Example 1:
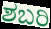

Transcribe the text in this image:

ಶಬರಿ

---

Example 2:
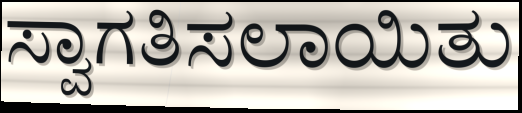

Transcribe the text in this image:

ಸ್ವಾಗತಿಸಲಾಯಿತು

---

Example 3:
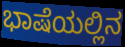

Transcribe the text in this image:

ಭಾಷೆಯಲ್ಲಿನ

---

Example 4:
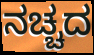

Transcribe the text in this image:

ನಚ್ಚದ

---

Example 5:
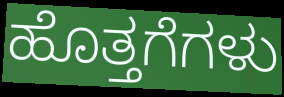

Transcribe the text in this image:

ಹೊತ್ತಗೆಗಳು